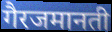
गैरजमानती